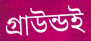
গ্রাউন্ডই